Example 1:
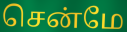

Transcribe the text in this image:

சென்மே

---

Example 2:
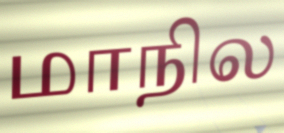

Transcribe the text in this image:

மாநில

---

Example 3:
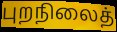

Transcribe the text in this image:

புறநிலைத்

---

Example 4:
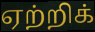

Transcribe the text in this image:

ஏற்றிக்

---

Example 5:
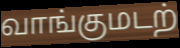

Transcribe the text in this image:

வாங்குமடற்